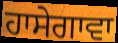
ਹਾਸੇਗਾਵਾ